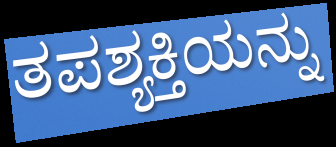
ತಪಶ್ಯಕ್ತಿಯನ್ನು